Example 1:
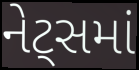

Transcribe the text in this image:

નેટ્સમાં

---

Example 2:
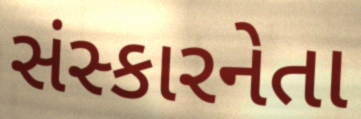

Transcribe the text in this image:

સંસ્કારનેતા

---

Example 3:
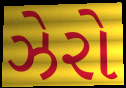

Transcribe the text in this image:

ઝેરો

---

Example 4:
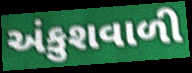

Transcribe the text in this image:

અંકુશવાળી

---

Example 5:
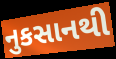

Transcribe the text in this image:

નુકસાનથી